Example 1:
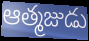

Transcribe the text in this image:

ఆత్మజుడు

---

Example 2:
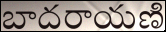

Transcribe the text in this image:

బాదరాయణి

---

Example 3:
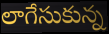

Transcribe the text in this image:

లాగేసుకున్న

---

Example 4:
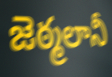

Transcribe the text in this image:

జెఠ్మలానీ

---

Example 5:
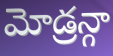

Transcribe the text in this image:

మోడ్రన్గా